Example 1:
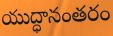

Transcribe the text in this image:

యుద్ధానంతరం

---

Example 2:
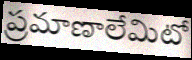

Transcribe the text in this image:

ప్రమాణాలేమిటో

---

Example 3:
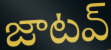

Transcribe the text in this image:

జాటవ్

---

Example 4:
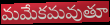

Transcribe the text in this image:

మమేకమవుతూ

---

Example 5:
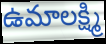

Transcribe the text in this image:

ఉమాలక్ష్మి